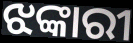
ଝଙ୍କାରୀ